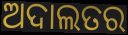
ଅଦାଲତର